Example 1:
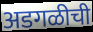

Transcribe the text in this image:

अडगळीची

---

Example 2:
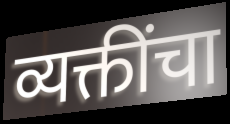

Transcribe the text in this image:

व्यक्तींचा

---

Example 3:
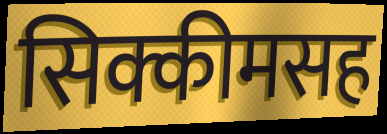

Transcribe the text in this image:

सिक्कीमसह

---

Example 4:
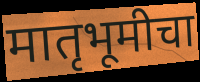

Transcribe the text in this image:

मातृभूमीचा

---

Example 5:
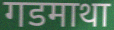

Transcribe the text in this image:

गडमाथा